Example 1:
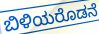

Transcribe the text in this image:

ಬಿಳಿಯರೊಡನೆ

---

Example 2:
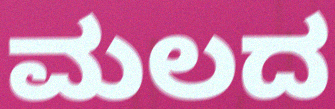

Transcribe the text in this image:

ಮಲದ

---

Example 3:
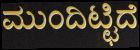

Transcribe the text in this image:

ಮುಂದಿಟ್ಟಿದೆ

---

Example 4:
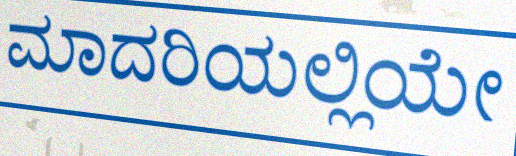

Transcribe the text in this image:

ಮಾದರಿಯಲ್ಲಿಯೇ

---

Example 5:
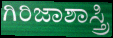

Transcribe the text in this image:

ಗಿರಿಜಾಶಾಸ್ತ್ರಿ